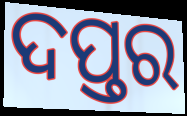
ଦପ୍ତର